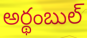
అర్థంబుల్